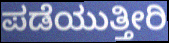
ಪಡೆಯುತ್ತೀರಿ